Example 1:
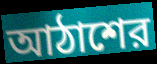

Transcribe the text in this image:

আঠাশের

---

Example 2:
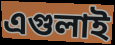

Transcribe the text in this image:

এগুলাই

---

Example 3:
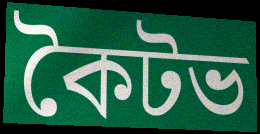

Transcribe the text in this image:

কৈটভ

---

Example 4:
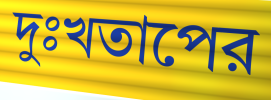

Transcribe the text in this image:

দুঃখতাপের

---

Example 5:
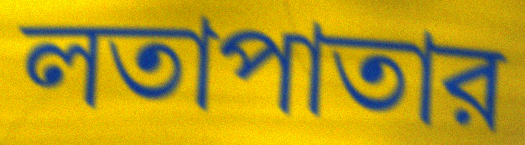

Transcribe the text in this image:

লতাপাতার